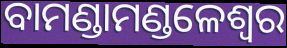
ବାମଣ୍ଡାମଣ୍ଡଳେଶ୍ୱର